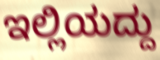
ಇಲ್ಲಿಯದ್ದು